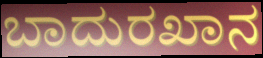
ಬಾದುರಖಾನ